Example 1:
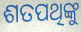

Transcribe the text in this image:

ଶତପଥିଙ୍କୁ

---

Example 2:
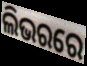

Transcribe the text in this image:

ଲିଭରରେ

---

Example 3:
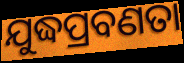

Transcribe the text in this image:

ଯୁଦ୍ଧପ୍ରବଣତା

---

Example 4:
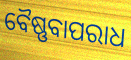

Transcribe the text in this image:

ବୈଷ୍ଣବାପରାଧ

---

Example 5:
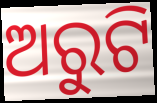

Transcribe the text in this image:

ଅରୁଟି